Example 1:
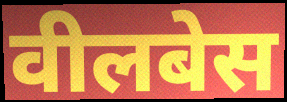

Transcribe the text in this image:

वीलबेस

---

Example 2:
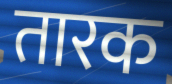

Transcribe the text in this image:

तारक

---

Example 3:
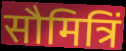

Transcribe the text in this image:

सौमित्रिं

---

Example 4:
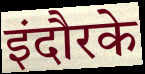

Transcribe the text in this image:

इंदौरके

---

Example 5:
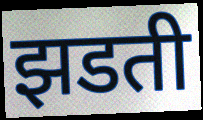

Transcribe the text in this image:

झडती